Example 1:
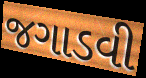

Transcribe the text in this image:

જગાડવી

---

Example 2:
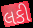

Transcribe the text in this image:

લકી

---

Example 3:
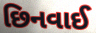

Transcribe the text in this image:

છિનવાઈ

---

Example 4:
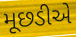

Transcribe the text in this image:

મૂછડીએ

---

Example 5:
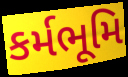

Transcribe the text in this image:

કર્મભૂમિ